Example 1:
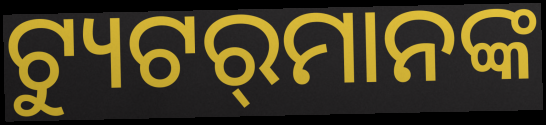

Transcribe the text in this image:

ଟ୍ୟୁଟର୍‍ମାନଙ୍କ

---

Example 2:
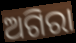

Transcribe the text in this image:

ଅଗିରା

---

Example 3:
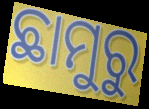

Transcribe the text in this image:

ଛାମୁରୁ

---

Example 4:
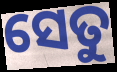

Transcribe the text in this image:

ସେତୁ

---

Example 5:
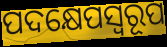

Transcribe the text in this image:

ପଦକ୍ଷେପସ୍ୱରୂପ